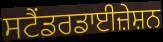
ਸਟੈਂਡਰਡਾਈਜ਼ੇਸ਼ਨ